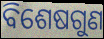
ବିଶେଷଗୁଣ